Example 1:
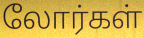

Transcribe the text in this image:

லோர்கள்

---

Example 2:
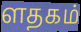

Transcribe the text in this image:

ளதகம்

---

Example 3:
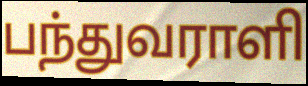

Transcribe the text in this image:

பந்துவராளி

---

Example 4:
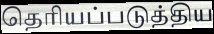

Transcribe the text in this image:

தெரியப்படுத்திய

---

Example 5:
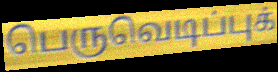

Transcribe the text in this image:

பெருவெடிப்புக்